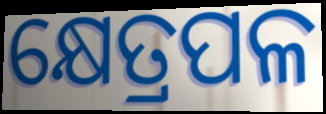
କ୍ଷେତ୍ରପଳ